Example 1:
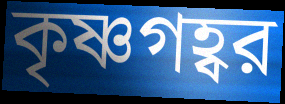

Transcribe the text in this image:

কৃষ্ণগহ্বর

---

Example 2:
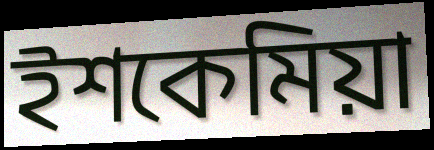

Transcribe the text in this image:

ইশকেমিয়া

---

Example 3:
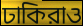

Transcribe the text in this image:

ঢাকিরাও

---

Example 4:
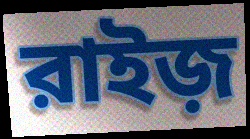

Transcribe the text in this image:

রাইজ়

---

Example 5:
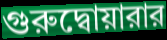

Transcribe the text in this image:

গুরুদ্বোয়ারার